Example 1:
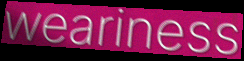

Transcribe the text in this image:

weariness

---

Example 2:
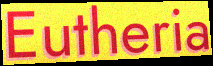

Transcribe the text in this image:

Eutheria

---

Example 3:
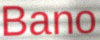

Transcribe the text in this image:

Bano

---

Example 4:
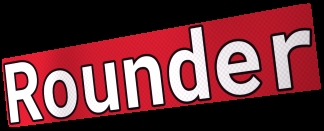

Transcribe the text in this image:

Rounder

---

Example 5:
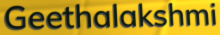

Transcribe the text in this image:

Geethalakshmi